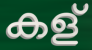
കള്